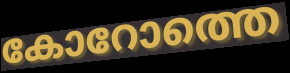
കോറോത്തെ